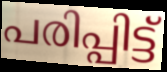
പരിപ്പിട്ട്